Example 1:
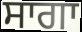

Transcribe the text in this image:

ਸਾਗਾ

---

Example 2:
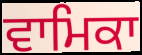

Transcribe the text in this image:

ਵਾਮਿਕਾ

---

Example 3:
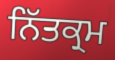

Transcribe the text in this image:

ਨਿੱਤਕ੍ਰਮ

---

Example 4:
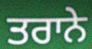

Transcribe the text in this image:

ਤਰਾਨੇ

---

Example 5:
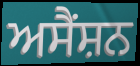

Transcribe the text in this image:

ਅਸੈਂਸ਼ਨ